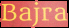
Bajra